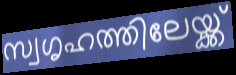
സ്വഗൃഹത്തിലേയ്ക്ക്